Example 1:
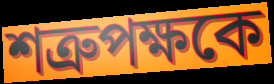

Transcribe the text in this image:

শত্রুপক্ষকে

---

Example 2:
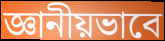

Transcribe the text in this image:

জ্ঞানীয়ভাবে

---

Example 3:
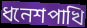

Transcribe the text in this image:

ধনেশপাখি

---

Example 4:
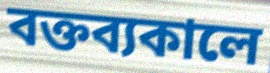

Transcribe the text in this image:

বক্তব্যকালে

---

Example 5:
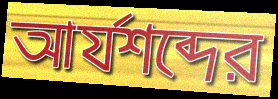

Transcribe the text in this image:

আর্যশব্দের